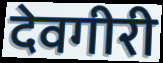
देवगीरी